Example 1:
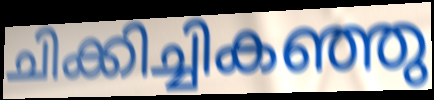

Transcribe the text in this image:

ചിക്കിച്ചികഞ്ഞു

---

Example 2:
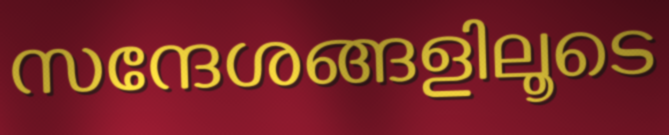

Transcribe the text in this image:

സന്ദേശങ്ങളിലൂടെ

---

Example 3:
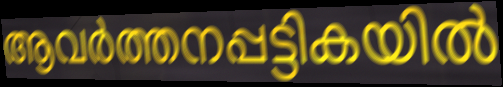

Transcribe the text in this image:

ആവർത്തനപ്പട്ടികയിൽ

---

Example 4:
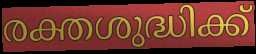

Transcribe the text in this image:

രക്തശുദ്ധിക്ക്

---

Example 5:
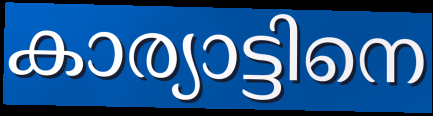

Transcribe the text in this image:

കാര്യാട്ടിനെ